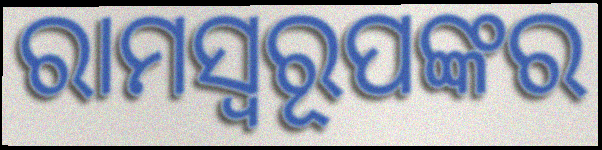
ରାମସ୍ୱରୂପଙ୍କର